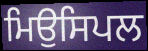
ਮਿਉਸਿਪਲ